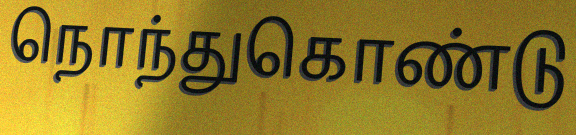
நொந்துகொண்டு